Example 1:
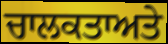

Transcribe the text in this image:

ਚਾਲਕਤਾਅਤੇ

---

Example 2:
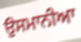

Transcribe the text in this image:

ਉਸਮਾਨੀਆ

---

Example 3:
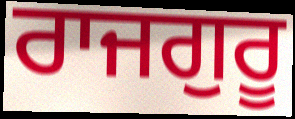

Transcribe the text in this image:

ਰਾਜਗੁਰੂ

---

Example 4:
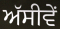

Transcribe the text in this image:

ਅੱਸੀਵੇਂ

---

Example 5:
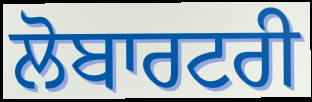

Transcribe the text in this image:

ਲੋਬਾਰਟਰੀ